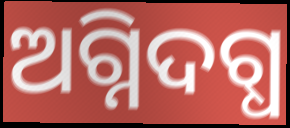
ଅଗ୍ନିଦଗ୍ଧ